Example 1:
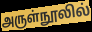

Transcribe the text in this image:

அருள்நூலில்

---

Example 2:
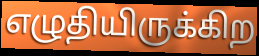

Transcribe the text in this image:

எழுதியிருக்கிற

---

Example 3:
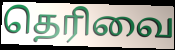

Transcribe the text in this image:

தெரிவை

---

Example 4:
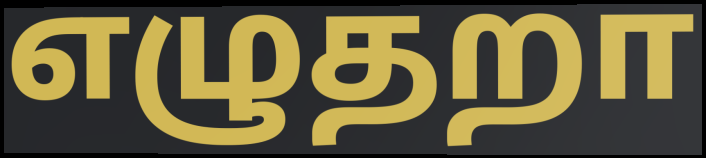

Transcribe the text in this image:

எழுதறா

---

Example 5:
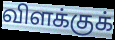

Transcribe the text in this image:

விளக்குக்